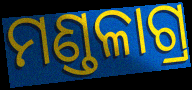
ମଣ୍ଡଳାଗ୍ର